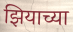
झियाच्या